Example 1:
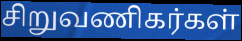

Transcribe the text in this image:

சிறுவணிகர்கள்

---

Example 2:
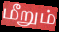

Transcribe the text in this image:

மீறும்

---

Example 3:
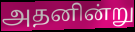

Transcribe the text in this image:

அதனின்று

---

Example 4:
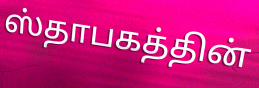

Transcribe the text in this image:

ஸ்தாபகத்தின்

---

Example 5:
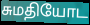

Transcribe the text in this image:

சுமதியோட